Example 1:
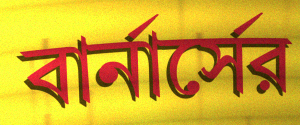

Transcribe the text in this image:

বার্নার্সের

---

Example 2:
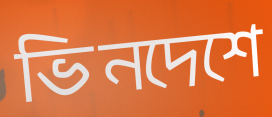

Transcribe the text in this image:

ভিনদেশে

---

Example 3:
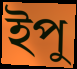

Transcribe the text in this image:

ইপু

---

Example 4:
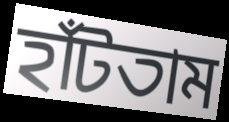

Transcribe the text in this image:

হাঁটতাম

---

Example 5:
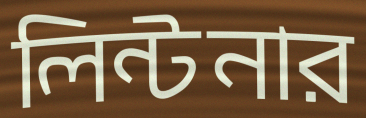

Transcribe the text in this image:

লিন্টনার